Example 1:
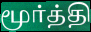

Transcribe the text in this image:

மூர்த்தி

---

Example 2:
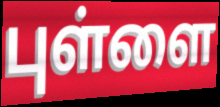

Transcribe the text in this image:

புள்ளை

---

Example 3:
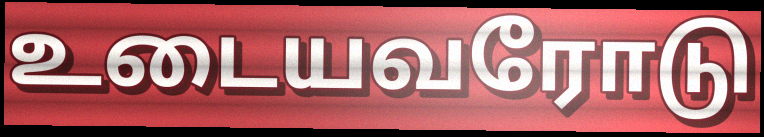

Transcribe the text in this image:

உடையவரோடு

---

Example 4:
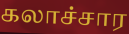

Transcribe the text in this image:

கலாச்சார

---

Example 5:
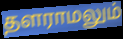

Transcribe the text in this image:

தளராமலும்